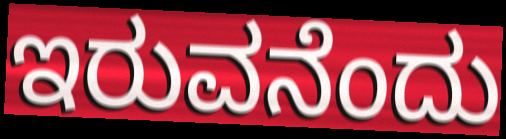
ಇರುವನೆಂದು